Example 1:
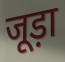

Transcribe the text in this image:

जूड़ा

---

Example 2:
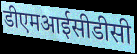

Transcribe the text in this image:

डीएमआईसीडीसी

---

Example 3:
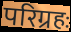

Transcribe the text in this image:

परिग्रहः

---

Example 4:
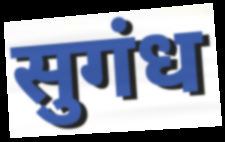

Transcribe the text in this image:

सुगंध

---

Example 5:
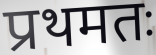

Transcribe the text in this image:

प्रथमतः